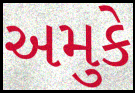
અમુકે